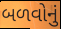
બળવોનું